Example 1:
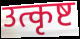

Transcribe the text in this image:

उत्कृष्ट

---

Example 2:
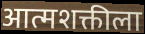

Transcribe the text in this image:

आत्मशक्तीला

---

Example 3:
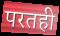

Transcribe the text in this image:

परतही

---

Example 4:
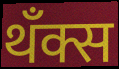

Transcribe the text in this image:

थँक्स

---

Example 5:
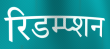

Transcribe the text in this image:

रिडम्प्शन